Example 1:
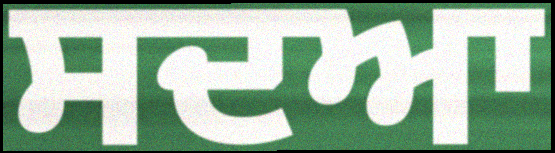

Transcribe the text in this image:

ਸਦਆ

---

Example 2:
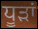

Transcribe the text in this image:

ਧੂੜਾਂ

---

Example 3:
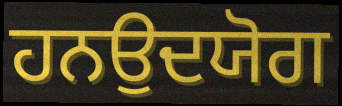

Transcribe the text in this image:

ਹਨਉਦਯੋਗ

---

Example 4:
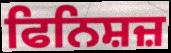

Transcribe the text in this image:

ਫਿਨਿਸ਼ਜ਼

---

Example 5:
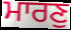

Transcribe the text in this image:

ਮਾਰਣੁ